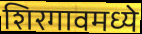
शिरगावमध्ये